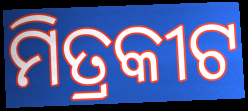
ମିତ୍ରକୀଟ